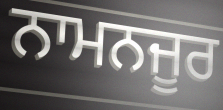
ਨਾਮਨਜੂਰ